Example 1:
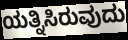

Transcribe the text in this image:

ಯತ್ನಿಸಿರುವುದು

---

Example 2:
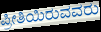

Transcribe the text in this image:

ಪ್ರೀತಿಯಿರುವವರು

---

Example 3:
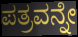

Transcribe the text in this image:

ಪತ್ರವನ್ನೇ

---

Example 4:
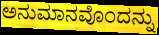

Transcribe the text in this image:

ಅನುಮಾನವೊಂದನ್ನು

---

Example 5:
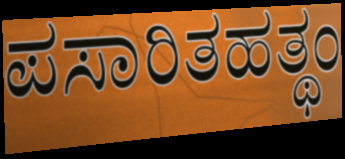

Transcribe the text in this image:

ಪಸಾರಿತಹತ್ಥಂ